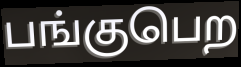
பங்குபெற